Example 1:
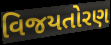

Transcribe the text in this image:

વિજયતોરણ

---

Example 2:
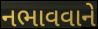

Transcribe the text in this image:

નભાવવાને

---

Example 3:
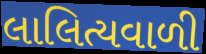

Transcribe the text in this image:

લાલિત્યવાળી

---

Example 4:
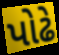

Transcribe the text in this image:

પોઢે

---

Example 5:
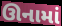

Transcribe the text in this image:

ઊનામાં